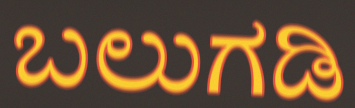
ಬಲುಗಡಿ